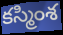
కస్మింశ